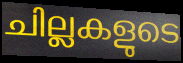
ചില്ലകളുടെ